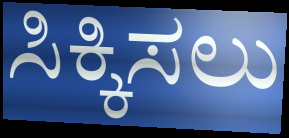
ಸಿಕ್ಕಿಸಲು